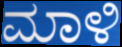
ಮಾಳಿ